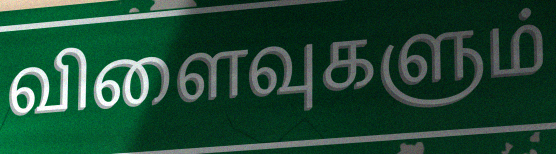
விளைவுகளும்